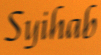
Syihab